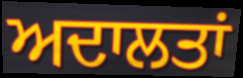
ਅਦਾਲਤਾਂ